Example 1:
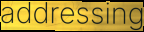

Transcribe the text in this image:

addressing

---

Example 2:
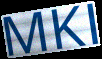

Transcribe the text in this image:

MKI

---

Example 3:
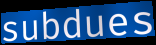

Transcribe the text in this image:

subdues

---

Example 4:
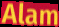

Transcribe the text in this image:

Alam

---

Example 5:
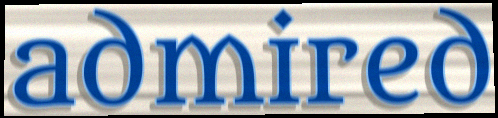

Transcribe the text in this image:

admired